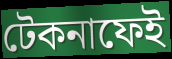
টেকনাফেই